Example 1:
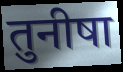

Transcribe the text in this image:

तुनीषा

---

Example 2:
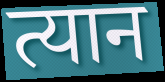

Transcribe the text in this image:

त्यान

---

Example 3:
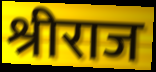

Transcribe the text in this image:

श्रीराज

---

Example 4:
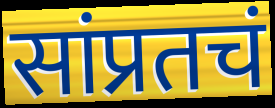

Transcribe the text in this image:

सांप्रतचं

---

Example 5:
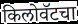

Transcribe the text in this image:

किलोवॅटचा